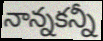
నాన్నకన్నీ